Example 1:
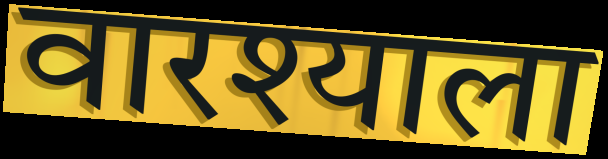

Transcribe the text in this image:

वारश्याला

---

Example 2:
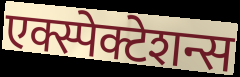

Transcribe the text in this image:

एक्स्पेक्टेशन्स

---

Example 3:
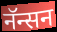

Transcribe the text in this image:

नॅन्सन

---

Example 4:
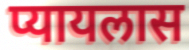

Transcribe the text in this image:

प्यायलास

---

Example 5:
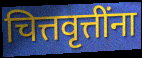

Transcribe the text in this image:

चित्तवृत्तींना